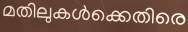
മതിലുകൾക്കെതിരെ